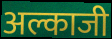
अल्काजी